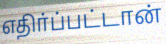
எதிர்ப்பட்டான்